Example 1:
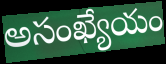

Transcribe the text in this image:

అసంఖ్యేయం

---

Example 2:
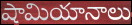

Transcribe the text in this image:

షామియానాలు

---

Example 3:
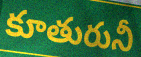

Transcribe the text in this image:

కూతురునీ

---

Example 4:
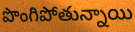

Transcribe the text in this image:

పొంగిపోతున్నాయి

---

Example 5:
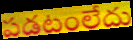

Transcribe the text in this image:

పడటంలేదు